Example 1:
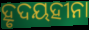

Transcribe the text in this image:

ହୃଦୟହୀନା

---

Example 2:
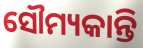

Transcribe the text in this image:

ସୌମ୍ୟକାନ୍ତି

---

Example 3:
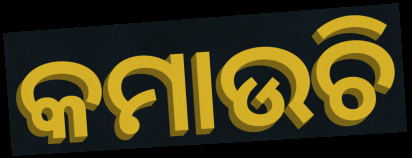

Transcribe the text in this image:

କମାଉଚି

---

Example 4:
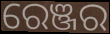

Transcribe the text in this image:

ରେଞ୍ଜର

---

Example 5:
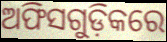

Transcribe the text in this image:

ଅଫିସଗୁଡ଼ିକରେ